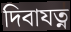
দিবাযত্ন